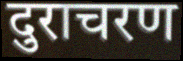
दुराचरण